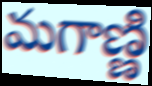
మగాణ్ణి